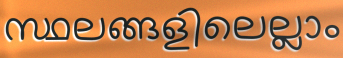
സ്ഥലങ്ങളിലെല്ലാം